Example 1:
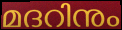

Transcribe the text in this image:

മദറിനും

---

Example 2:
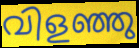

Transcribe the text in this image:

വിളഞ്ഞു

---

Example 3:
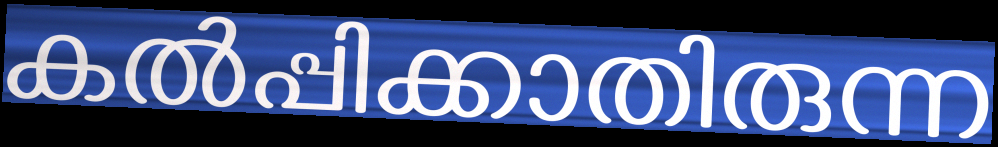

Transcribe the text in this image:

കൽപ്പിക്കാതിരുന്ന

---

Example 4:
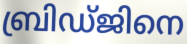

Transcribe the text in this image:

ബ്രിഡ്ജിനെ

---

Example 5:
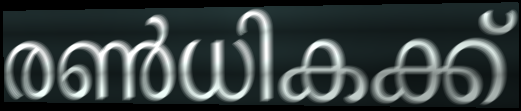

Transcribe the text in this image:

രൺധികക്ക്